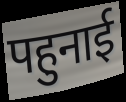
पहुनाई